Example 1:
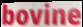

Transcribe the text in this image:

bovine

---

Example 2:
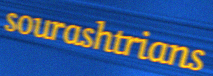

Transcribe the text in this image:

sourashtrians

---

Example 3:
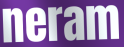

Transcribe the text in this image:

neram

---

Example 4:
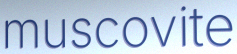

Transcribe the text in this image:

muscovite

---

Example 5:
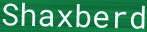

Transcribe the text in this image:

Shaxberd